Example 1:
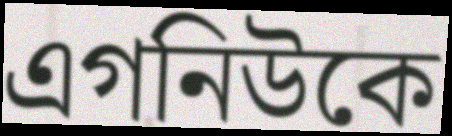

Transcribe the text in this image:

এগনিউকে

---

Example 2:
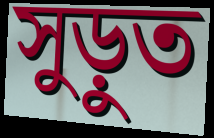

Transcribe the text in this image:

সুড়ুত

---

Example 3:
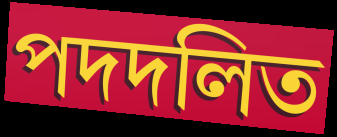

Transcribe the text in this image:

পদদলিত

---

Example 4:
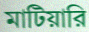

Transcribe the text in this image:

মাটিয়ারি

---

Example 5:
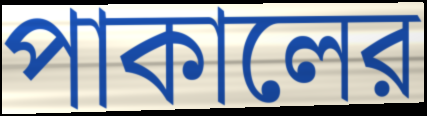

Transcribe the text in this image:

পাকালের